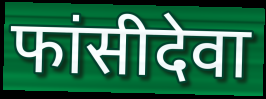
फांसीदेवा